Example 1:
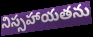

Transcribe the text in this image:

నిస్సహాయతను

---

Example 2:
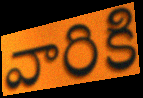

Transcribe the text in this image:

వారికి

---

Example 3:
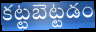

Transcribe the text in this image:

కట్టబెట్టడం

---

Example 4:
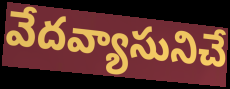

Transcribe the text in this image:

వేదవ్యాసునిచే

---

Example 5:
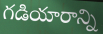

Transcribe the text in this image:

గడియారాన్ని